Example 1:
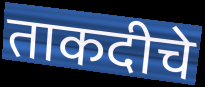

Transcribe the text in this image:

ताकदीचे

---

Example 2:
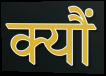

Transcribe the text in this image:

क्यौं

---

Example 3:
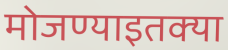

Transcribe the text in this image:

मोजण्याइतक्या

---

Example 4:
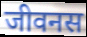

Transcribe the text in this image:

जीवनस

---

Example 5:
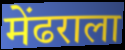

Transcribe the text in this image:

मेंढराला